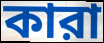
কারা